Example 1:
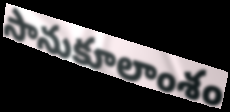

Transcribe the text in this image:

సానుకూలాంశం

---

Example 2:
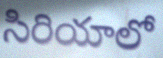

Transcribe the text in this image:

సిరియాలో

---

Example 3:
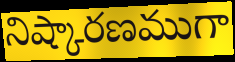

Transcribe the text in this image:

నిష్కారణముగా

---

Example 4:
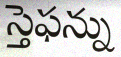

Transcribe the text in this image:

స్తెఫన్ను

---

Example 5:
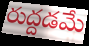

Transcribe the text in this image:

రుద్దడమే